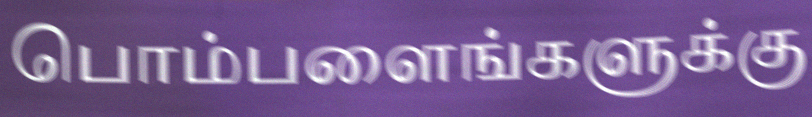
பொம்பளைங்களுக்கு